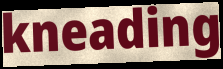
kneading